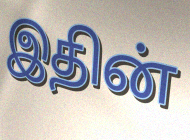
இதின்